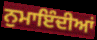
ਨੁਮਾਇੰਦੀਆਂ